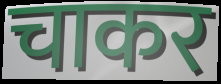
चाकर